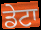
ਡੇਟਾ